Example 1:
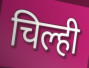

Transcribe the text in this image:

चिल्ही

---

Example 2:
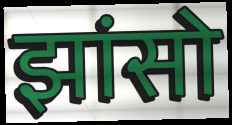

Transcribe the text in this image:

झांसो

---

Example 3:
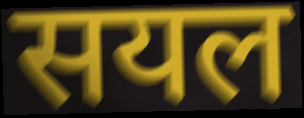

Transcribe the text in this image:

सयल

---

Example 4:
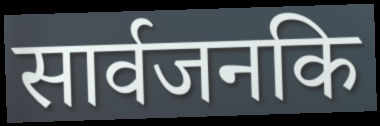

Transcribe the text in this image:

सार्वजनकि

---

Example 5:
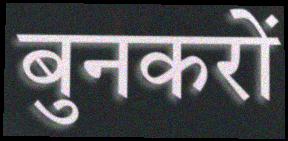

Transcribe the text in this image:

बुनकरों